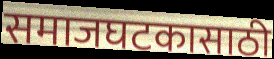
समाजघटकासाठी